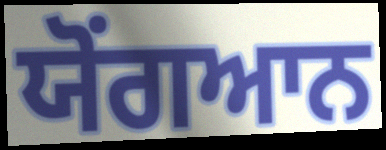
ਯੋਂਗਆਨ